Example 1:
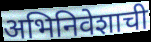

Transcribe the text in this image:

अभिनिवेशाची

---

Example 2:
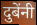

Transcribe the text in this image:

दुबेंनी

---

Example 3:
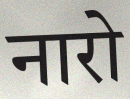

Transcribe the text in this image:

नारो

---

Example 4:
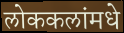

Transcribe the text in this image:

लोककलांमधे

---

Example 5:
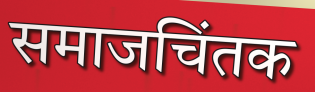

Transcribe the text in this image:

समाजचिंतक